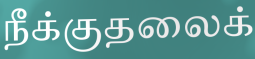
நீக்குதலைக்